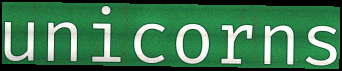
unicorns